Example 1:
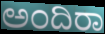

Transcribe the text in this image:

ಅಂದಿರಾ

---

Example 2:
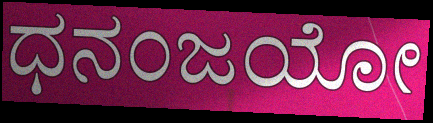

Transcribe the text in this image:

ಧನಂಜಯೋ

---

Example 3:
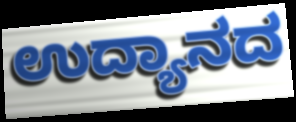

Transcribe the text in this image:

ಉದ್ಯಾನದ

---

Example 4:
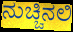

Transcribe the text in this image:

ನುಚ್ಚಿನಲಿ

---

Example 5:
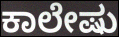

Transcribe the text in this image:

ಕಾಲೇಷು